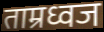
ताम्रध्वज